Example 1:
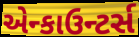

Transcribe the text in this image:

એન્કાઉન્ટર્સ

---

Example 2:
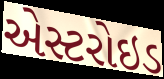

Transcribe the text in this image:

એસ્ટરોઇડ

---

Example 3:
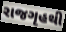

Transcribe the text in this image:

રાજગૃહથી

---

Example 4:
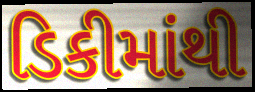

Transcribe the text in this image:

ડિકીમાંથી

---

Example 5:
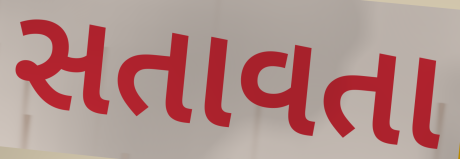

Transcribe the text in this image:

સતાવતા